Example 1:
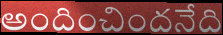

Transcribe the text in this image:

అందించిందనేది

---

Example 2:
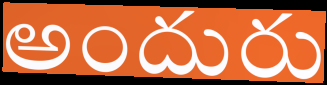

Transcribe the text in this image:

అందురు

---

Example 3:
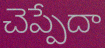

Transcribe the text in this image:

చెప్పేదా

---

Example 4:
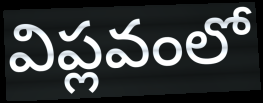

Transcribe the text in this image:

విప్లవంలో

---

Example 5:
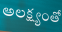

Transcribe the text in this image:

అలక్ష్యంతో